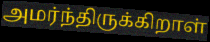
அமர்ந்திருக்கிறாள்